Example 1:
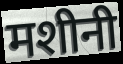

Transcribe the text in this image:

मशीनी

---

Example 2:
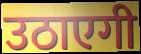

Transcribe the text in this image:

उठाएगी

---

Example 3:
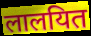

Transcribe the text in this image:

लालयित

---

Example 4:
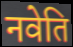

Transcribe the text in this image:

नवेति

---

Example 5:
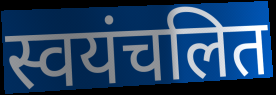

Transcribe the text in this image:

स्वयंचलित